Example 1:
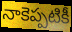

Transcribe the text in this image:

నాకెప్పటికీ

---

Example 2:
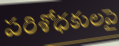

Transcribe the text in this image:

పరిశోధకులపై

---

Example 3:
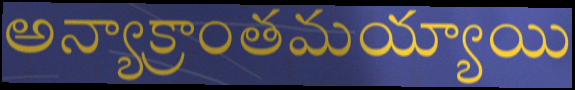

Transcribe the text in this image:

అన్యాక్రాంతమయ్యాయి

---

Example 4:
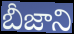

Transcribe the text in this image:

బీజాని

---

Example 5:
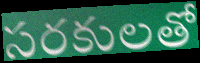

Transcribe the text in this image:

సరకులతో